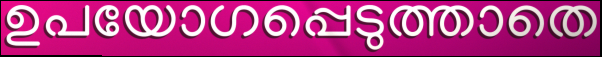
ഉപയോഗപ്പെടുത്താതെ